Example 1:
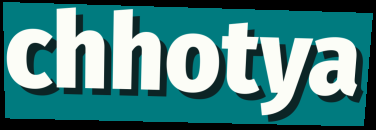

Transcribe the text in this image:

chhotya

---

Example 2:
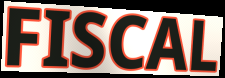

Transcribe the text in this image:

FISCAL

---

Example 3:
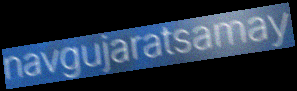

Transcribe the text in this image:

navgujaratsamay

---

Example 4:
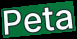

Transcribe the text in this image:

Peta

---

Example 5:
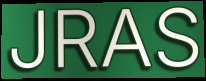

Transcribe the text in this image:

JRAS